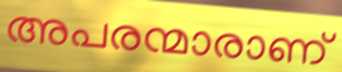
അപരന്മാരാണ്